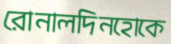
রোনালদিনহোকে